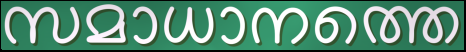
സമാധാനത്തെ